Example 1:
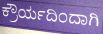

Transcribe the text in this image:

ಕ್ರೌರ್ಯದಿಂದಾಗಿ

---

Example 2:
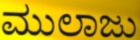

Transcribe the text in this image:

ಮುಲಾಜು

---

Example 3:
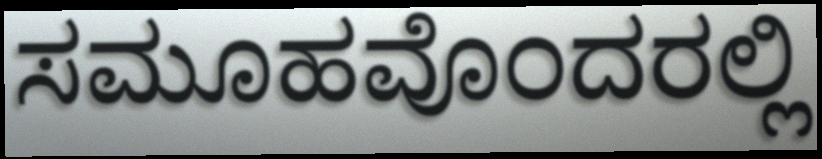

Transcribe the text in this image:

ಸಮೂಹವೊಂದರಲ್ಲಿ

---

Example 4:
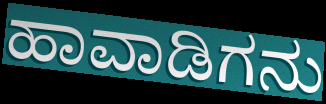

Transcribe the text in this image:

ಹಾವಾಡಿಗನು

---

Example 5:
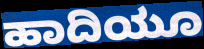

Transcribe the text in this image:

ಹಾದಿಯೂ